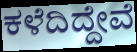
ಕಳೆದಿದ್ದೇವೆ